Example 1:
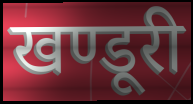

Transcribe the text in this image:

खण्डूरी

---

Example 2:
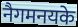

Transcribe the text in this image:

नैगमनयके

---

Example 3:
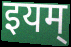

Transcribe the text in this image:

इयम्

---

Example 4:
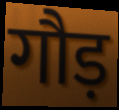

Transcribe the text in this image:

गौड़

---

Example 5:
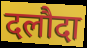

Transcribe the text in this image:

दलौदा